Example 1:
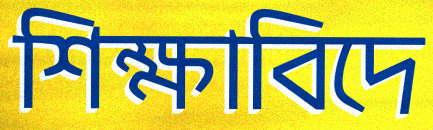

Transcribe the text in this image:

শিক্ষাবিদে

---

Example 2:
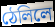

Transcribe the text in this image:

ঠেলিলে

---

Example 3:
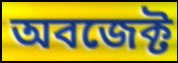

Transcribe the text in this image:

অবজেক্ট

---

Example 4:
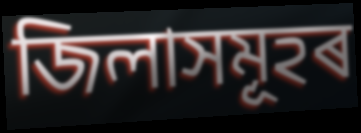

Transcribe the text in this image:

জিলাসমূহৰ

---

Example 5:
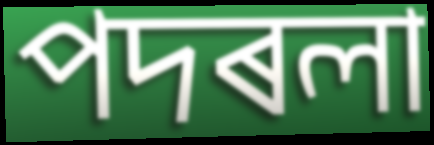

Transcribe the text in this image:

পদৰলা